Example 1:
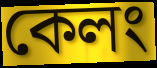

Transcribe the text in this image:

কেলং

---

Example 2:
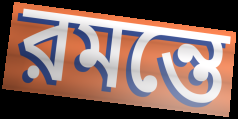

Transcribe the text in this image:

রমন্তে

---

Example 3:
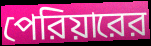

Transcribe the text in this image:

পেরিয়ারের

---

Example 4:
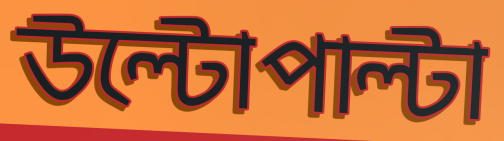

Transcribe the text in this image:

উল্টোপাল্টা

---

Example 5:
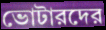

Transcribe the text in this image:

ভোটারদের